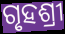
ଗୃହଶ୍ରୀ